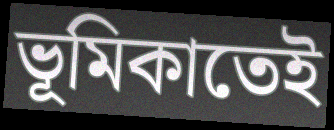
ভূমিকাতেই